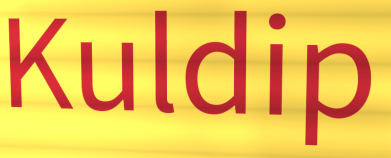
Kuldip